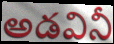
అడవినీ